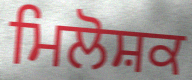
ਮਿਲੋਸ਼ਕ